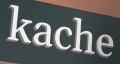
kache